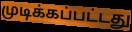
முடிக்கப்பட்டது